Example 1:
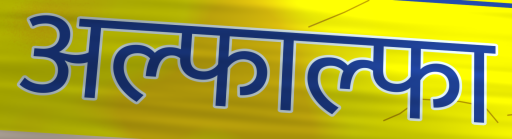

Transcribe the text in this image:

अल्फाल्फा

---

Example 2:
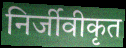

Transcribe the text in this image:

निर्जीवीकृत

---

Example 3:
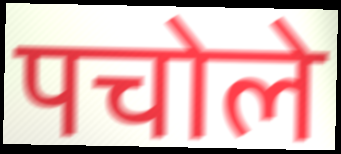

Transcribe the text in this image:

पचोले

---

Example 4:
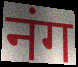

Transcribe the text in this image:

नंग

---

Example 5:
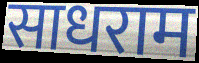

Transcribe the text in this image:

साधराम